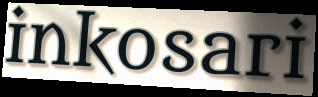
inkosari